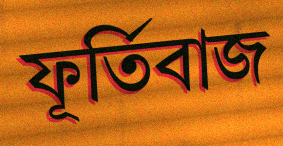
ফূর্তিবাজ